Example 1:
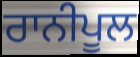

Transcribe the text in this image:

ਰਾਨੀਪੂਲ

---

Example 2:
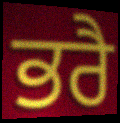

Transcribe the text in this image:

ਭਰੈ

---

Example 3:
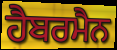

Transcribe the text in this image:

ਹੈਬਰਮੈਨ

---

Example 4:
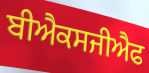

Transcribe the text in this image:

ਬੀਐਕਸਜੀਐਫ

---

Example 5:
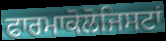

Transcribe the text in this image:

ਫਾਰਮਾਕੋਲੋਜਿਸਟਾਂ